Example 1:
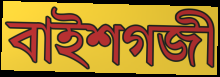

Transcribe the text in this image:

বাইশগজী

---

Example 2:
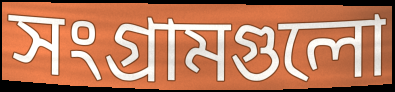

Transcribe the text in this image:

সংগ্রামগুলো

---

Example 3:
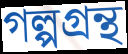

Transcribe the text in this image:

গল্পগ্রন্থ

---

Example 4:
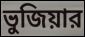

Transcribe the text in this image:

ভুজিয়ার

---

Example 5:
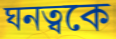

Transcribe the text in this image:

ঘনত্বকে